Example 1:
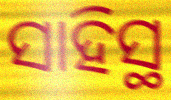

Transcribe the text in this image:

ସାହିସ୍ଥ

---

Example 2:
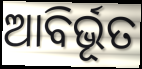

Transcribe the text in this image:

ଆବିର୍ଭୂତ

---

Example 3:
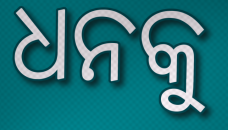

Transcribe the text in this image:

ଧନକୁ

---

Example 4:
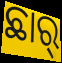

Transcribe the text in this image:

ଛାର୍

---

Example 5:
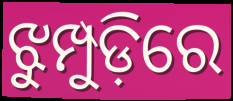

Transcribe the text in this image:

ଝୁମ୍ପୁଡ଼ିରେ